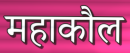
महाकौल